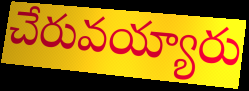
చేరువయ్యారు